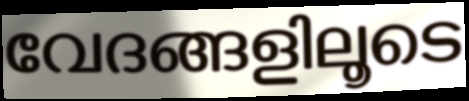
വേദങ്ങളിലൂടെ